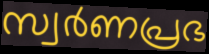
സ്വർണപ്രഭ